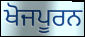
ਖੋਜਪੂਰਨ